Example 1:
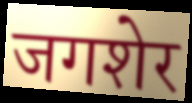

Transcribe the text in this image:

जगशेर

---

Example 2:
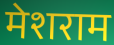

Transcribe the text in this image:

मेशराम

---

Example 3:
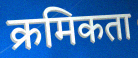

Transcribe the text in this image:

क्रमिकता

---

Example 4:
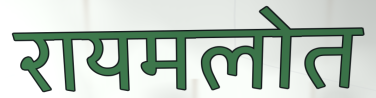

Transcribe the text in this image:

रायमलोत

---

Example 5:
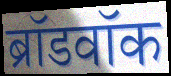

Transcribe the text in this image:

ब्रॉडवॉक